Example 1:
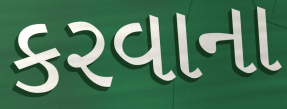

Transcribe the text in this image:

કરવાના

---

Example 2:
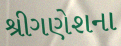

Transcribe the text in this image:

શ્રીગણેશના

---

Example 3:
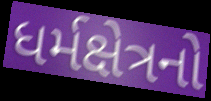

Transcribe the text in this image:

ધર્મક્ષેત્રનો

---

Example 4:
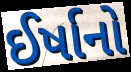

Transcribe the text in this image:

ઈર્ષાનો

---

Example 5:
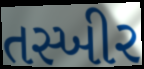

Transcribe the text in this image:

તસ્ખીર